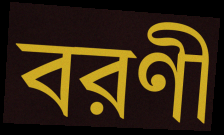
বরণী